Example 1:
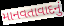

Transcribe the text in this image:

માનવતાવાદનું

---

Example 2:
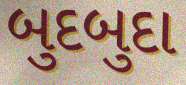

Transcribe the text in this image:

બુદબુદા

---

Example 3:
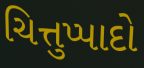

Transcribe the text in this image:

ચિત્તુપ્પાદો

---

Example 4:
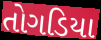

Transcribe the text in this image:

તોગડિયા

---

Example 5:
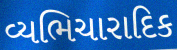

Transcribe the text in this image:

વ્યભિચારાદિક